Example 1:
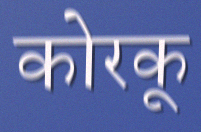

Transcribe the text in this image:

कोरकू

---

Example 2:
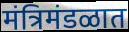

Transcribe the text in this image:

मंत्रिमंडळात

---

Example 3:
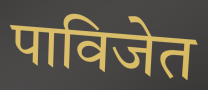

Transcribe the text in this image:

पाविजेत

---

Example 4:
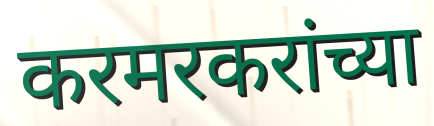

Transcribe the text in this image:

करमरकरांच्या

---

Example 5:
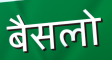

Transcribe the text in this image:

बैसलो